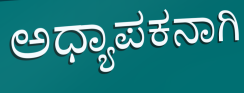
ಅಧ್ಯಾಪಕನಾಗಿ